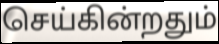
செய்கின்றதும்